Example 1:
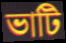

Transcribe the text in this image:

ভাটি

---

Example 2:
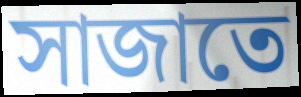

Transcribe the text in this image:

সাজাতে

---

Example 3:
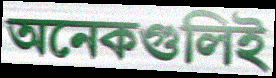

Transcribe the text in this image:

অনেকগুলিই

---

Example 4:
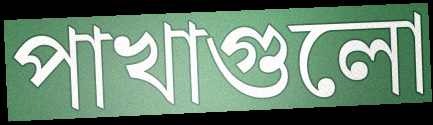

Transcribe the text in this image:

পাখাগুলো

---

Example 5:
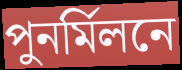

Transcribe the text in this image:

পুনর্মিলনে